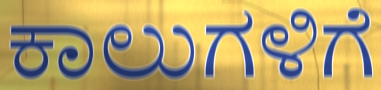
ಕಾಲುಗಳಿಗೆ